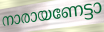
നാരായണേട്ടാ